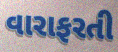
વારાફરતી